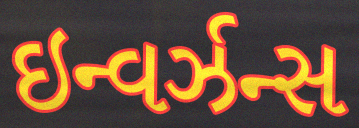
ઇન્વર્ઝન્સ